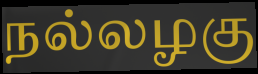
நல்லழகு